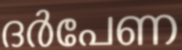
ദർപേണ